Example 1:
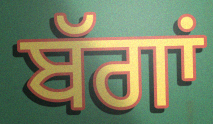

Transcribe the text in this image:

ਬੱਗਾਂ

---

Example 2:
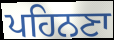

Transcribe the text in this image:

ਪਹਿਨਣਾ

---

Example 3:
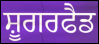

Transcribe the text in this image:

ਸ਼ੂਗਰਫੈਡ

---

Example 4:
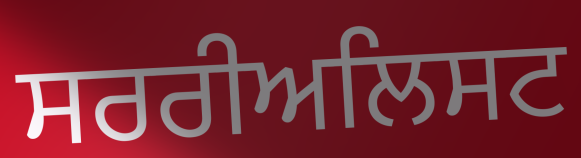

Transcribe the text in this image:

ਸਰਰੀਅਲਿਸਟ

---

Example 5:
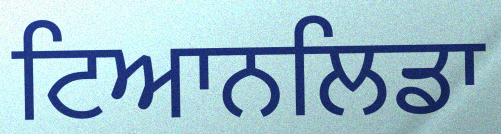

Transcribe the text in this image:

ਟਿਆਨਲਿਡਾ